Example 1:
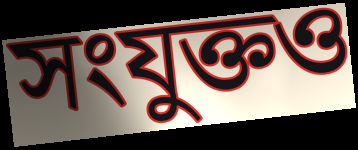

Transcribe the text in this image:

সংযুক্তও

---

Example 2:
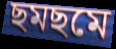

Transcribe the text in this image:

ছমছমে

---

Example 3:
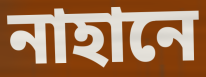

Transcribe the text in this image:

নাহানে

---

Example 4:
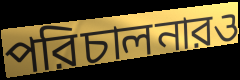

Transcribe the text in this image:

পরিচালনারও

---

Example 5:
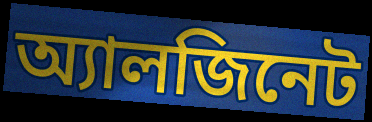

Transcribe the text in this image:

অ্যালজিনেট